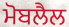
ਮੋਬਲੈਲ